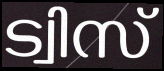
ട്വിസ്